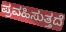
ಪ್ರವಹಿಸುತ್ತದೆ